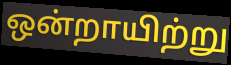
ஒன்றாயிற்று